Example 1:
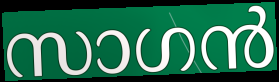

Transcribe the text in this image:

സാഗൻ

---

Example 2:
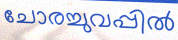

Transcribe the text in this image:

ചോരച്ചുവപ്പിൽ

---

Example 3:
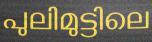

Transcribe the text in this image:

പുലിമുട്ടിലെ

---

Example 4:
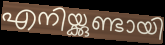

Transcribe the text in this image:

എനിയ്ക്കുണ്ടായി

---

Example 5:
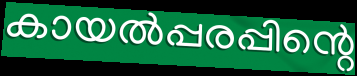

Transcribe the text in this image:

കായൽപ്പരപ്പിന്റെ